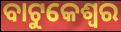
ବାଟୁକେଶ୍ୱର